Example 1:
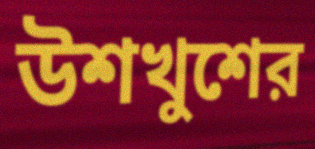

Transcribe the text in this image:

উশখুশের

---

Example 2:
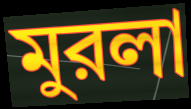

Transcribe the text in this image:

মুরলা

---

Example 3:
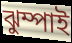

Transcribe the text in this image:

ঝুম্পাই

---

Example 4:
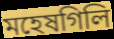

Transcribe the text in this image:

মহেষগিলি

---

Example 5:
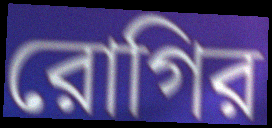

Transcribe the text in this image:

রোগির